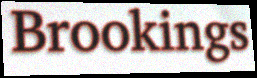
Brookings